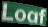
Loaf